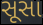
સૂસા